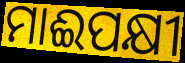
ମାଈପକ୍ଷୀ